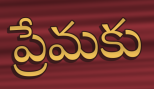
ప్రేమకు